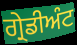
ਗ੍ਰੇਡੀਅੰਟ